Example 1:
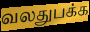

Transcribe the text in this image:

வலதுபக்க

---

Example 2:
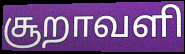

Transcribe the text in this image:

சூறாவளி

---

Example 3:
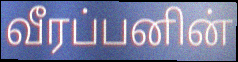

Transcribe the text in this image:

வீரப்பனின்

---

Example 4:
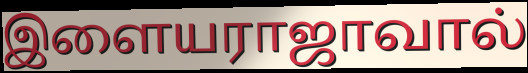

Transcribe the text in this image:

இளையராஜாவால்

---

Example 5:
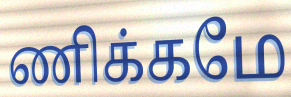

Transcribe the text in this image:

ணிக்கமே